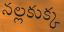
నల్లకుక్క